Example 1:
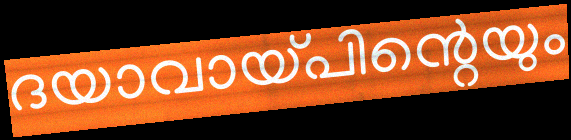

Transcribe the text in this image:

ദയാവായ്പിന്റെയും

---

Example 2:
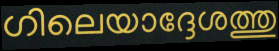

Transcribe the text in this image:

ഗിലെയാദ്ദേശത്തു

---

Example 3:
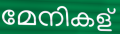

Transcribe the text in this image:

മേനികള്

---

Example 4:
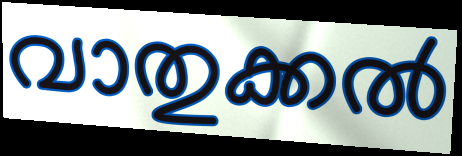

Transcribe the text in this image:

വാതുക്കൽ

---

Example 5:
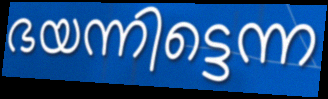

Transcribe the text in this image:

ഭയന്നിട്ടെന്ന